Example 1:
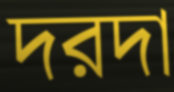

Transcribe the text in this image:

দরদা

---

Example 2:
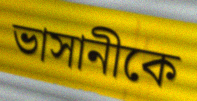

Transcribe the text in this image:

ভাসানীকে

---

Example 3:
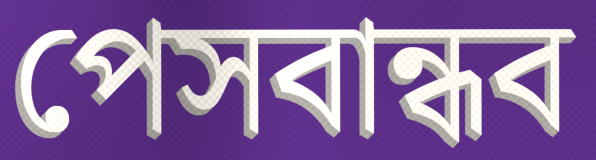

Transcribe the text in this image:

পেসবান্ধব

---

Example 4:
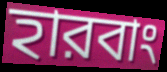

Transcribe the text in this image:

হারবাং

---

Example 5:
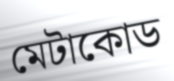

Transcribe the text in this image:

মেটাকোড